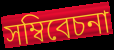
সম্বিবেচনা